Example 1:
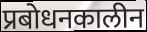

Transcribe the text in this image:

प्रबोधनकालीन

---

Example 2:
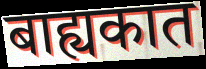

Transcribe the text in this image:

बाह्यकात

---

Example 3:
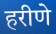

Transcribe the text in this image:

हरीणे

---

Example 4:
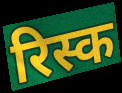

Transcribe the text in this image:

रिस्क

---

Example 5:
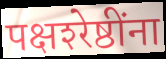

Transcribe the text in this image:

पक्षश्रेष्ठींना